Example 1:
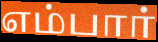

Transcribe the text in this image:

எம்பார்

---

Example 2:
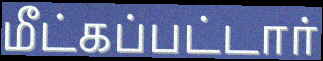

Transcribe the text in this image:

மீட்கப்பட்டார்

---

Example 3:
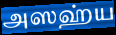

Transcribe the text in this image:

அஸஹ்ய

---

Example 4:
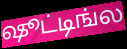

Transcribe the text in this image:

ஷூட்டிங்ல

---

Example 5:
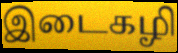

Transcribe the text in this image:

இடைகழி